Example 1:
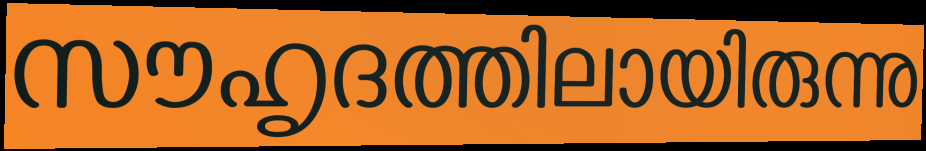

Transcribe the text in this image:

സൗഹൃദത്തിലായിരുന്നു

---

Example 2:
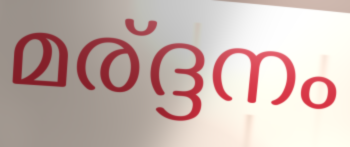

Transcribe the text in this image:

മര്ദ്ദനം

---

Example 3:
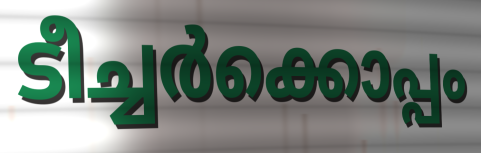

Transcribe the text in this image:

ടീച്ചർക്കൊപ്പം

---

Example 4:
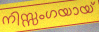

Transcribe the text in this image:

നിസ്സംഗയായ്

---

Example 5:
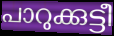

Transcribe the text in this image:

പാറുക്കുട്ടീ